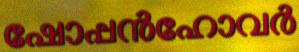
ഷോപ്പൻഹോവർ